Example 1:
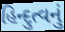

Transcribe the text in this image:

હિન્દુત્વનું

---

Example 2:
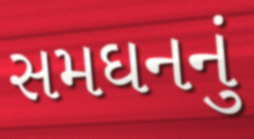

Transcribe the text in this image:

સમઘનનું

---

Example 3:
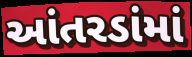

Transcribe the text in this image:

આંતરડાંમાં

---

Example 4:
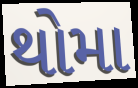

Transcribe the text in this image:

થોમા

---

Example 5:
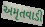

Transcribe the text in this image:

અમૃતવાડી